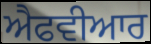
ਐਫਵੀਆਰ